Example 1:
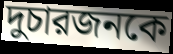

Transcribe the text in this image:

দুচারজনকে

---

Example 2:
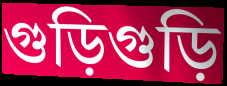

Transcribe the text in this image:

গুড়িগুড়ি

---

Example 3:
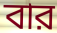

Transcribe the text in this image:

বার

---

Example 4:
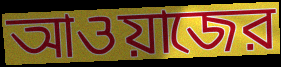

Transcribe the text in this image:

আওয়াজের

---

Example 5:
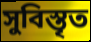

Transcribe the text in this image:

সুবিস্তৃত